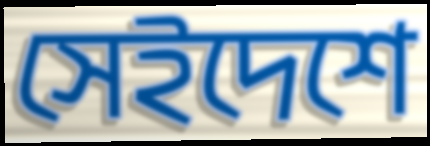
সেইদেশে